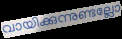
വായിക്കുന്നുണ്ടല്ലോ